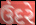
ઉંદરે